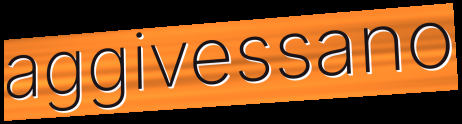
aggivessano